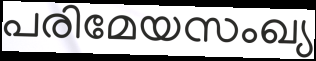
പരിമേയസംഖ്യ